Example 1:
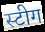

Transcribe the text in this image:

स्टीग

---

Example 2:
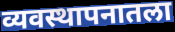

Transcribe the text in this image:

व्यवस्थापनातला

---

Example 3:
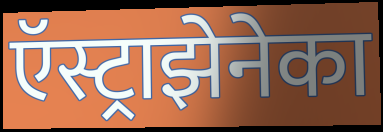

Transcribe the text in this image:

ऍस्ट्राझेनेका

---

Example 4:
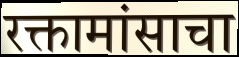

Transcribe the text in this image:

रक्तामांसाचा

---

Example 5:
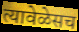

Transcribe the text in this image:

त्यावेळेसच